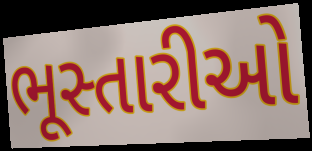
ભૂસ્તારીઓ